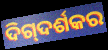
ଦିଗ୍‍ଦର୍ଶକର